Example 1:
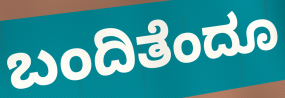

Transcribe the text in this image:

ಬಂದಿತೆಂದೂ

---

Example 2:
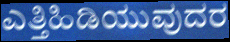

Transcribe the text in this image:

ಎತ್ತಿಹಿಡಿಯುವುದರ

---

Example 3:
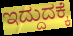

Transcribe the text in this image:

ಇದ್ದುದಕ್ಕೆ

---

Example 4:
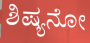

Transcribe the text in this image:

ಶಿಷ್ಯನೋ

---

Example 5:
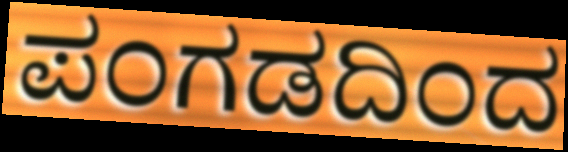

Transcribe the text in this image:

ಪಂಗಡದಿಂದ